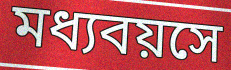
মধ্যবয়সে